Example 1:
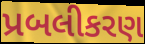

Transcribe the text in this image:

પ્રબલીકરણ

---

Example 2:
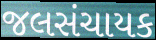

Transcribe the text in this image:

જલસંચાયક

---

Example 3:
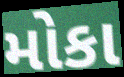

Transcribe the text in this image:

મોકા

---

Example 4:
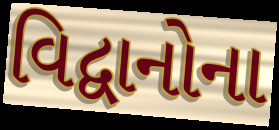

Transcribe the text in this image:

વિદ્વાનોના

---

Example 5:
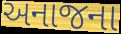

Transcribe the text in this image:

અનાજના